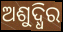
ଅଶୁଦ୍ଧିର